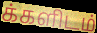
க்களிடம்